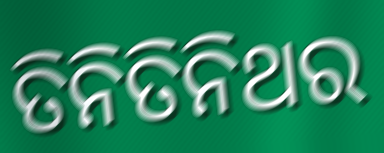
ତିନିତିନିଥର